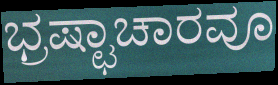
ಭ್ರಷ್ಟಾಚಾರವೂ